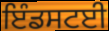
ਇੰਡਸਟਈ